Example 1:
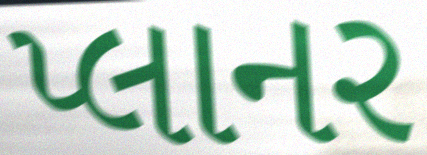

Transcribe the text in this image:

પ્લાનર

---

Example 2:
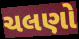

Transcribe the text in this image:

ચલણો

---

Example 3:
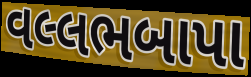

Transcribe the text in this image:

વલ્લભબાપા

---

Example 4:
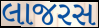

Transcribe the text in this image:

લાજરસ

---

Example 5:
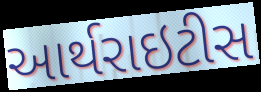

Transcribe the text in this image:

આર્થરાઇટીસ